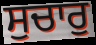
ਸੁਚਾਰੁ